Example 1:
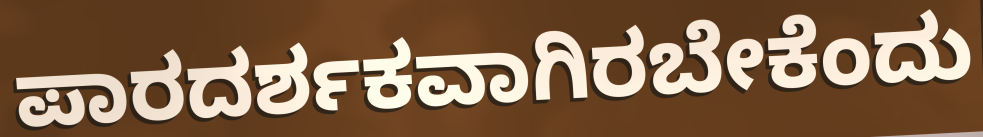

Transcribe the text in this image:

ಪಾರದರ್ಶಕವಾಗಿರಬೇಕೆಂದು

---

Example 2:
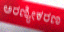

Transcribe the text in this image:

ಅರಣ್ಯೀಕರಣ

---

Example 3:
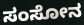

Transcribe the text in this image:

ಸಂಸೋನ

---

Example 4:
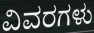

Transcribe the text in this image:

ವಿವರಗಳು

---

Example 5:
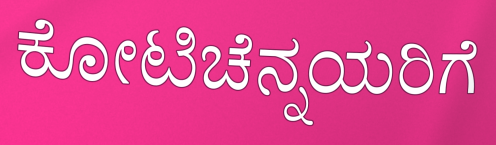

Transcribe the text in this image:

ಕೋಟಿಚೆನ್ನಯರಿಗೆ